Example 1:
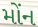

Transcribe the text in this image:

મોંન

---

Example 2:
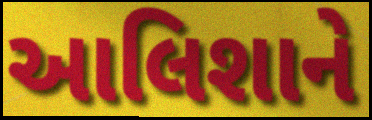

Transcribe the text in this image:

આલિશાને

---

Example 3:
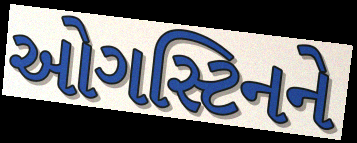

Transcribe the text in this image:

ઓગસ્ટિનને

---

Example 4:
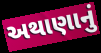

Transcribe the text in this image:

અથાણાનું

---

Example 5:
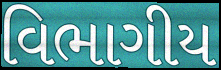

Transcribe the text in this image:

વિભાગીય